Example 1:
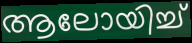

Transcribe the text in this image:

ആലോയിച്ച്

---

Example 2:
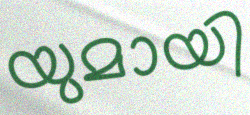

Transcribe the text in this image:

യുമായി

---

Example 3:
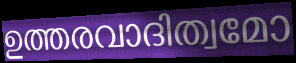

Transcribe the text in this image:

ഉത്തരവാദിത്വമോ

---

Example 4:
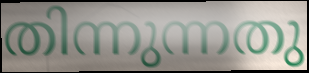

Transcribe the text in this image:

തിന്നുന്നതു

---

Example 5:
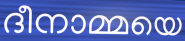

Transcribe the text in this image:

ദീനാമ്മയെ